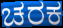
ಚರಕ